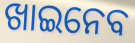
ଖାଇନେବ